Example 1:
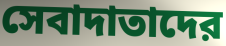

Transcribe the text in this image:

সেবাদাতাদের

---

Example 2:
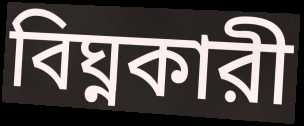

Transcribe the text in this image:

বিঘ্নকারী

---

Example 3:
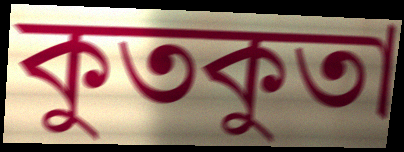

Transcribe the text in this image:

কুতকুতা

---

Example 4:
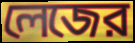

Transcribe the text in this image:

লেজের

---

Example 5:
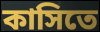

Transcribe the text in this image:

কাসিতে